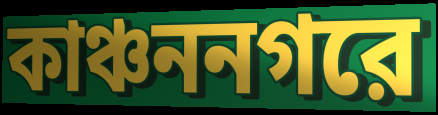
কাঞ্চননগরে